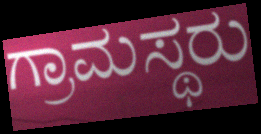
ಗ್ರಾಮಸ್ಥರು